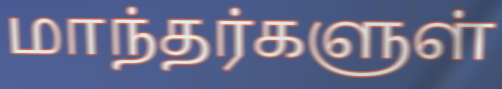
மாந்தர்களுள்